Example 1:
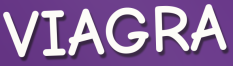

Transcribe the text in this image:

VIAGRA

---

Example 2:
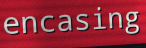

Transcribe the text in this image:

encasing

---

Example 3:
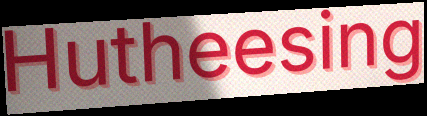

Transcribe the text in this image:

Hutheesing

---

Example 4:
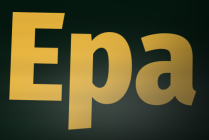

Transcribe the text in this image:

Epa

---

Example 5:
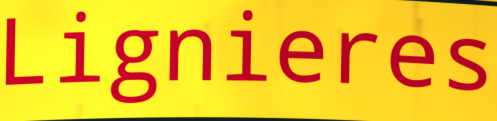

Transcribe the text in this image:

Lignieres